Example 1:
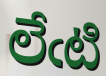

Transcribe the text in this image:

లేఁటి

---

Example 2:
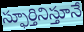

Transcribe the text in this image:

స్ఫూర్తినిస్తూనే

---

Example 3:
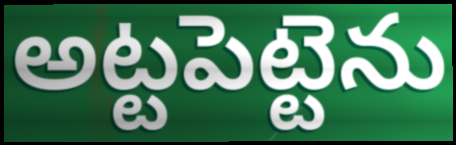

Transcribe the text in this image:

అట్టపెట్టెను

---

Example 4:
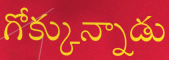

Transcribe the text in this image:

గోక్కున్నాడు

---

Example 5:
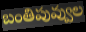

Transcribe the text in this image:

బంతిపువ్వుల